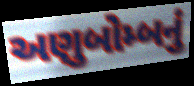
અણુબોમ્બનું